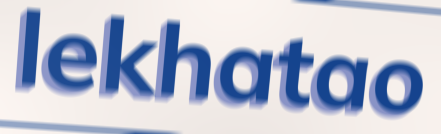
lekhatao